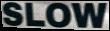
SLOW